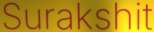
Surakshit